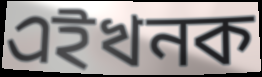
এইখনক